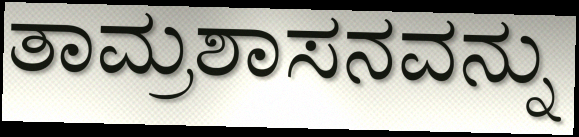
ತಾಮ್ರಶಾಸನವನ್ನು